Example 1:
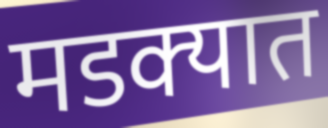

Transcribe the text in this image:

मडक्यात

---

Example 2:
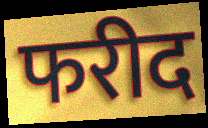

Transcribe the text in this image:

फरीद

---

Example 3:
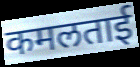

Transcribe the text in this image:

कमलताई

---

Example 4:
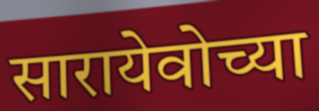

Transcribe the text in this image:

सारायेवोच्या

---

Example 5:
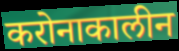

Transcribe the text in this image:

करोनाकालीन